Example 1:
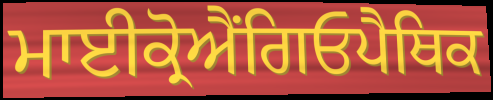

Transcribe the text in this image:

ਮਾਈਕ੍ਰੋਐਂਗਿਓਪੈਥਿਕ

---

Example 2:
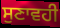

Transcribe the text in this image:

ਸੁਣਾਵਹੀ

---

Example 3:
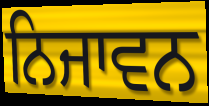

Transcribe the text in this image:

ਨਿਜਾਵਨ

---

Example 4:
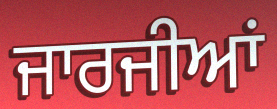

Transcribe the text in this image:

ਜਾਰਜੀਆਂ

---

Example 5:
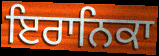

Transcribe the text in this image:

ਇਰਾਨਿਕਾ